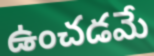
ఉంచడమే